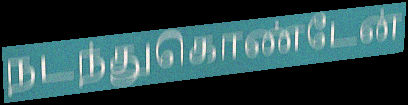
நடந்துகொண்டேன்